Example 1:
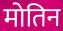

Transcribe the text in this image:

मोतिन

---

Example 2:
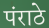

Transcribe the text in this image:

पंराठे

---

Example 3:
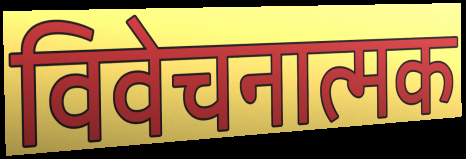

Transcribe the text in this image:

विवेचनात्मक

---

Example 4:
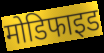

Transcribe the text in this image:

मोडिफाइड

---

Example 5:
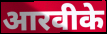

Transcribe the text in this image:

आरवीके